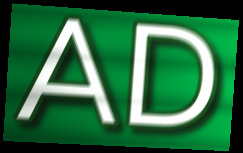
AD